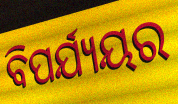
ବିପର୍ଯ୍ଯୟର